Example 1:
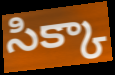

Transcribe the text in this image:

సిక్కా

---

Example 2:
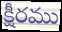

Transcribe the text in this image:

క్షీరము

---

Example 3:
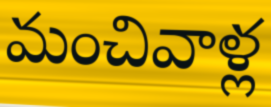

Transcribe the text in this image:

మంచివాళ్ల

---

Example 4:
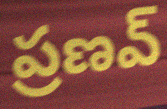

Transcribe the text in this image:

ప్రణవ్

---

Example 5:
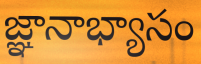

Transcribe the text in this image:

జ్ఞానాభ్యాసం